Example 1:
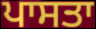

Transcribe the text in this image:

ਪਾਸਤਾ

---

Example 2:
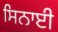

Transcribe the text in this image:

ਸਿਨਾਈ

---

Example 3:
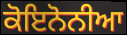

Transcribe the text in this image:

ਕੋਇਨੋਨੀਆ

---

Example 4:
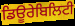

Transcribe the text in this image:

ਡਿਊਰੇਬਿਲਿਟੀ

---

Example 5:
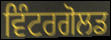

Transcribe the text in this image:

ਵਿੰਟਰਗੋਲਡ